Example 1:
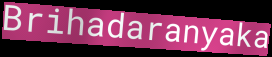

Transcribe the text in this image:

Brihadaranyaka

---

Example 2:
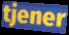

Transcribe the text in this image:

tjener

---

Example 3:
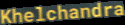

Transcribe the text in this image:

Khelchandra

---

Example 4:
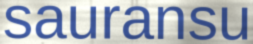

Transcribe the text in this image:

sauransu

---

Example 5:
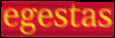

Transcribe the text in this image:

egestas